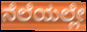
ನೆಲೆಯಲ್ಲೇ